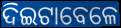
ଦିଇଟାବେଳେ